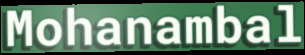
Mohanambal